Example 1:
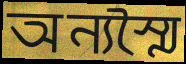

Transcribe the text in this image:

অন্যস্মৈ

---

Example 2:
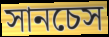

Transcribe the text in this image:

সানচেস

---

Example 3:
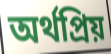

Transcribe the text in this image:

অর্থপ্রিয়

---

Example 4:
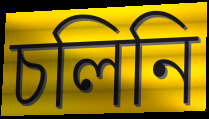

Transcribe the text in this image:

চলিনি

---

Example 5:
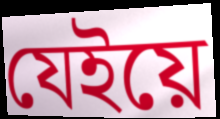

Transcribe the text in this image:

যেইয়ে